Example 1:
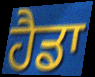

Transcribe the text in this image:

ਹੈਡਾ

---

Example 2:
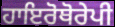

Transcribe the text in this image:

ਹਾਇਰੋਥੋਰੇਪੀ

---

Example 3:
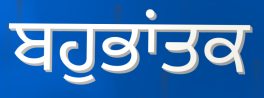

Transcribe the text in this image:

ਬਹੁਭਾਂਤਕ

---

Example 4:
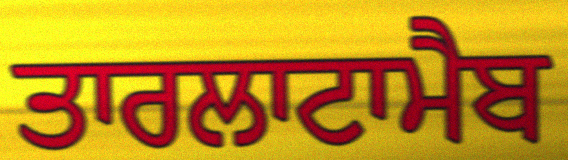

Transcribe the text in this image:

ਤਾਰਲਾਟਾਮੈਬ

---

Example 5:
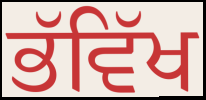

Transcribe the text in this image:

ਭੱਵਿੱਖ